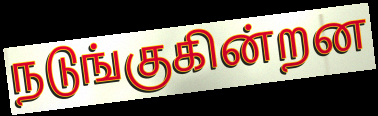
நடுங்குகின்றன